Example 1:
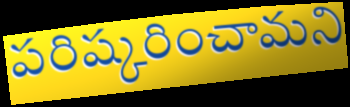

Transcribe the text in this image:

పరిష్కరించామని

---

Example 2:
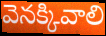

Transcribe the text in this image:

వెనక్కివాలి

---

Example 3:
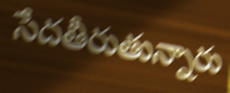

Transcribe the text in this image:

సేదతీరుతున్నారు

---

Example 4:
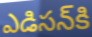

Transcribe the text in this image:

ఎడిసన్‌కి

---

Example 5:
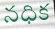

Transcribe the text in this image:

నధిక